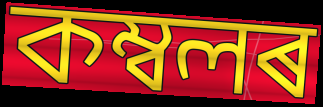
কম্বলৰ